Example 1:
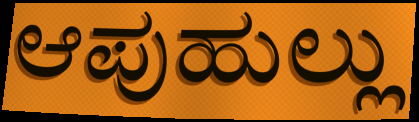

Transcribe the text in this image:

ಆಪುಹುಲ್ಲು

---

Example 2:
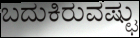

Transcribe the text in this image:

ಬದುಕಿರುವಷ್ಟು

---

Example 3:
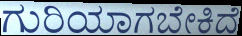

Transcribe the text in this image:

ಗುರಿಯಾಗಬೇಕಿದೆ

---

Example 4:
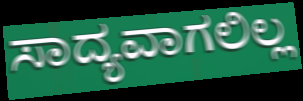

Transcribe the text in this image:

ಸಾದ್ಯವಾಗಲಿಲ್ಲ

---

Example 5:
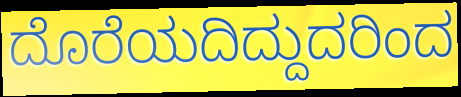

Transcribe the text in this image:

ದೊರೆಯದಿದ್ದುದರಿಂದ